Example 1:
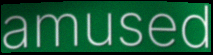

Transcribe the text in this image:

amused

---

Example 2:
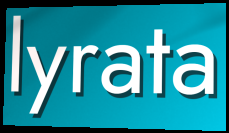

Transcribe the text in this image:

lyrata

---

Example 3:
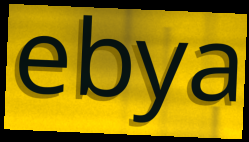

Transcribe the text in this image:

ebya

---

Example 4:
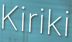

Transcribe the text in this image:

Kiriki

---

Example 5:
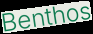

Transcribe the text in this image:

Benthos